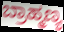
ಬ್ರಾಹ್ಮಣ್ಯ